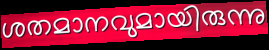
ശതമാനവുമായിരുന്നു